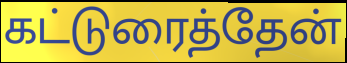
கட்டுரைத்தேன்